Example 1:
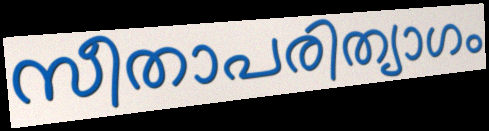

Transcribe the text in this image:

സീതാപരിത്യാഗം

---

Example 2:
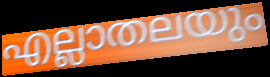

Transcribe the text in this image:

എല്ലാതലയും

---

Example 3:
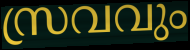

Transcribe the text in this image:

സ്രവവും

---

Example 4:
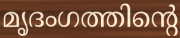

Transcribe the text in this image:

മൃദംഗത്തിന്റെ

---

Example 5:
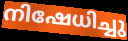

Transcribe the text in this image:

നിഷേധിച്ചു